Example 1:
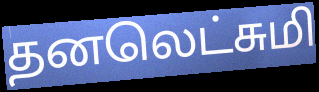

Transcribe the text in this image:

தனலெட்சுமி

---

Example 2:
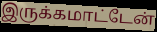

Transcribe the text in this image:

இருக்கமாட்டேன்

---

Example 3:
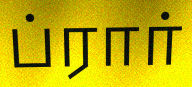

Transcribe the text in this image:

ப்ரார்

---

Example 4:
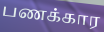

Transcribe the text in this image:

பணக்கார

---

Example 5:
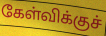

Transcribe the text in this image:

கேள்விக்குச்